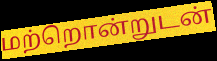
மற்றொன்றுடன்